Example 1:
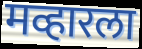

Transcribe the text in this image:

मव्हारला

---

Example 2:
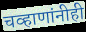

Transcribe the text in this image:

चव्हाणांनीही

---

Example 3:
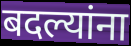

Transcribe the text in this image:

बदल्यांना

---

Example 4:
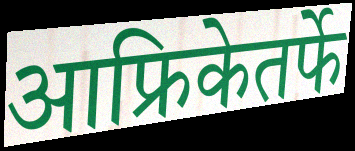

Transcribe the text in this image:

आफ्रिकेतर्फे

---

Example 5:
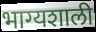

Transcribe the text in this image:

भाग्यशाली